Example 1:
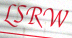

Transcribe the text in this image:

LSRW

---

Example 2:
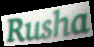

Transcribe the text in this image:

Rusha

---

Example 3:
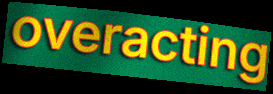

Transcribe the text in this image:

overacting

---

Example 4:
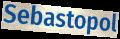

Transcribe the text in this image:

Sebastopol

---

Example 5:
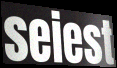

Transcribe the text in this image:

seiest